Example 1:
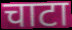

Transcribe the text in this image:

चाटा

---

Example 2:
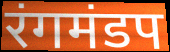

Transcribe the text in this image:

रंगमंडप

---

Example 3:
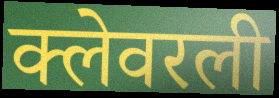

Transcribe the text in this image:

क्लेवरली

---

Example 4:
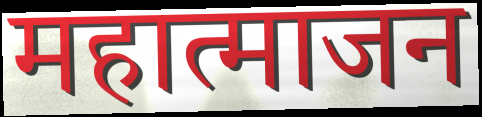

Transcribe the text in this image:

महात्माजन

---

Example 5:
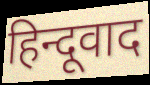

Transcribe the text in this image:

हिन्दूवाद